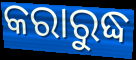
କରାରୁଦ୍ଧ